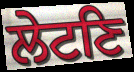
ਲੇਟਣਿ